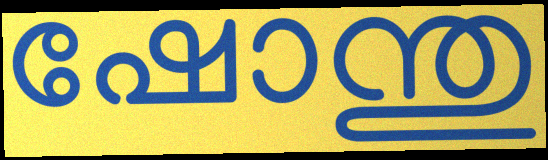
ഷോന്തു